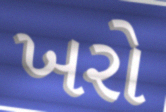
ખરો